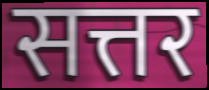
सत्तर